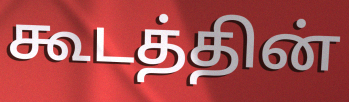
கூடத்தின்